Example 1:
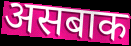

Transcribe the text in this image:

असबाक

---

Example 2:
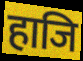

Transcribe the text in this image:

हाजि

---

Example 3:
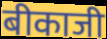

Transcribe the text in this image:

बीकाजी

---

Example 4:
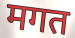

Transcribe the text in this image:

मगत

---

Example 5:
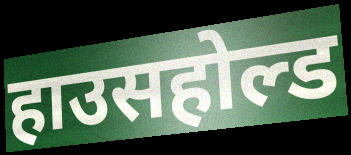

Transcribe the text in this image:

हाउसहोल्ड